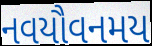
નવયૌવનમય